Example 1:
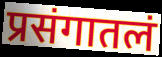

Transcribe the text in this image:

प्रसंगातलं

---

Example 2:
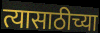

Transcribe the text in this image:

त्यासाठीच्या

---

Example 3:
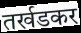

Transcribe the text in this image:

तर्खडकर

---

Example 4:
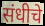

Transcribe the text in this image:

संधीचे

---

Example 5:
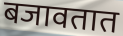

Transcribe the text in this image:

बजावतात